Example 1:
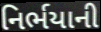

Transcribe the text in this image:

નિર્ભયાની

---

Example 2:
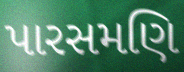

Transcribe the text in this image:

પારસમણિ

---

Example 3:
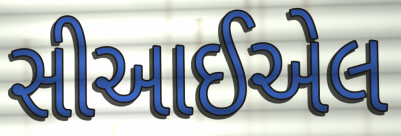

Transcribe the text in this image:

સીઆઈએલ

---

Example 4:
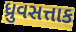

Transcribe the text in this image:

ધ્રુવસત્તાક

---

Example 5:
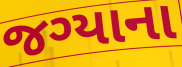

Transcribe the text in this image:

જગ્યાના